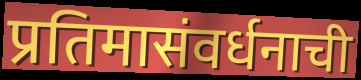
प्रतिमासंवर्धनाची